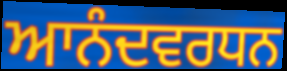
ਆਨੰਦਵਰਧਨ